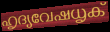
ഹൃദ്യവേഷധൃക്